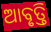
ଆବୃତ୍ତି